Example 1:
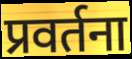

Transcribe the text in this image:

प्रवर्तना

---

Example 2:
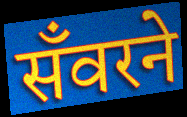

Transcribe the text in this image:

सँवरने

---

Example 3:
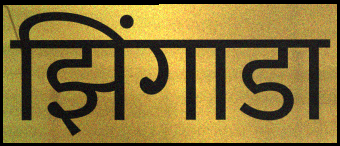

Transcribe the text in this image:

झिंगाडा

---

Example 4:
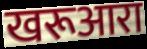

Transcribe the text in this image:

खरूआरा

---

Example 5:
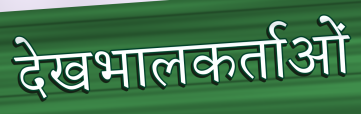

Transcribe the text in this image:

देखभालकर्ताओं